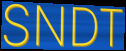
SNDT